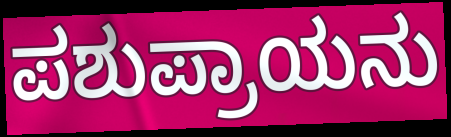
ಪಶುಪ್ರಾಯನು